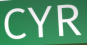
CYR